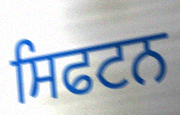
ਸਿਫਟਨ